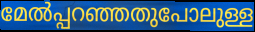
മേൽപ്പറഞ്ഞതുപോലുള്ള